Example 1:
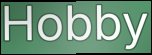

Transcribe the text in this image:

Hobby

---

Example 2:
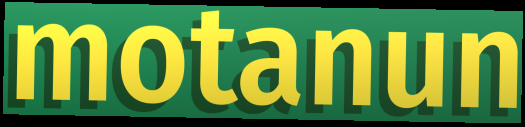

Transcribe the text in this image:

motanun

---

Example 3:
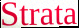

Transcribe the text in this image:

Strata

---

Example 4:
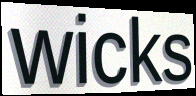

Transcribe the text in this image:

wicks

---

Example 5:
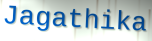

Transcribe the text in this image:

Jagathika